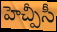
హెచ్పీసీ